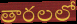
తారలలో